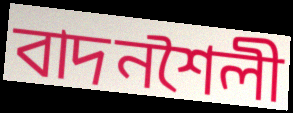
বাদনশৈলী